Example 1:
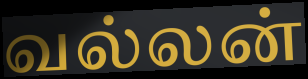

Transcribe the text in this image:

வல்லன்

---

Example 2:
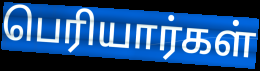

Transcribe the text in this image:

பெரியார்கள்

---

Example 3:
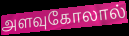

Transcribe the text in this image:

அளவுகோலால்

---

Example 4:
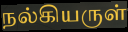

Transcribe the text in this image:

நல்கியருள்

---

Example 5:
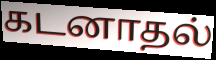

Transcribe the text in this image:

கடனாதல்